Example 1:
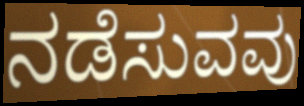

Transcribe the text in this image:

ನಡೆಸುವವು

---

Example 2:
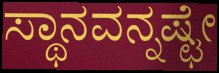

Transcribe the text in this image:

ಸ್ಥಾನವನ್ನಷ್ಟೇ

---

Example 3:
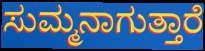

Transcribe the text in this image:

ಸುಮ್ಮನಾಗುತ್ತಾರೆ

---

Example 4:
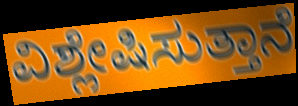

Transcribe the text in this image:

ವಿಶ್ಲೇಷಿಸುತ್ತಾನೆ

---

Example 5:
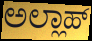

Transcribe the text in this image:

ಅಲ್ಲಾಹ್